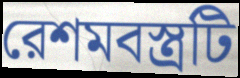
রেশমবস্ত্রটি